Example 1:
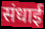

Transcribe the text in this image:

संधाई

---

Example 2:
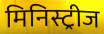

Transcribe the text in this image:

मिनिस्ट्रीज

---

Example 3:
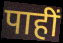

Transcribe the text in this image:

पाहीं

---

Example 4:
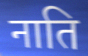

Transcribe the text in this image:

नाति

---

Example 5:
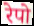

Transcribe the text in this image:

रेपो